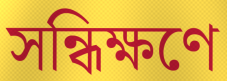
সন্ধিক্ষণে